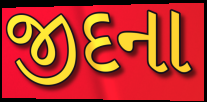
જીદના